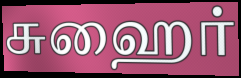
சுஹைர்